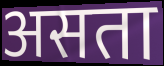
असता